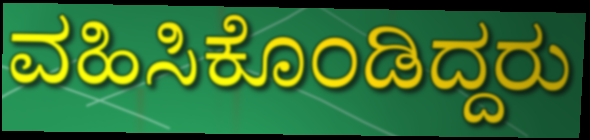
ವಹಿಸಿಕೊಂಡಿದ್ದರು